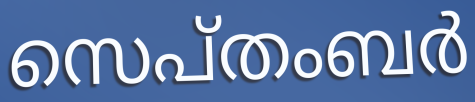
സെപ്തംബർ